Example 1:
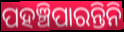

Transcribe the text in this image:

ପହଞ୍ଚିପାରନ୍ତିନି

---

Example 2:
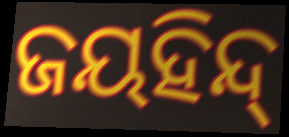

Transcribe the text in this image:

ଜୟହିନ୍ଦ୍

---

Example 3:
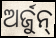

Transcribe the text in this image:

ଅର୍ଜୁନ୍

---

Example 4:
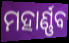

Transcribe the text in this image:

ମହାର୍ଣ୍ଣବ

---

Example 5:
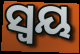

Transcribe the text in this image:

ସ୍ବୟ